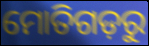
ମୋତିଗଡ଼ରୁ